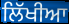
ਲਿੱਖੀਆ